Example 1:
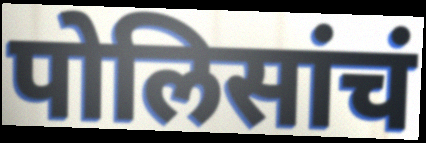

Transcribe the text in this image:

पोलिसांचं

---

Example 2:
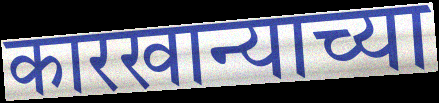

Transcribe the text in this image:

कारखान्याच्या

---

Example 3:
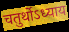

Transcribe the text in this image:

चतुर्थोऽध्याय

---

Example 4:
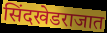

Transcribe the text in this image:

सिंदखेडराजात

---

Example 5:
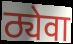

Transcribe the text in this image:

ठ्येवा